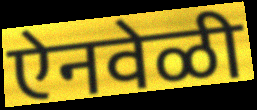
ऐनवेळी